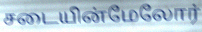
சடையின்மேலோர்